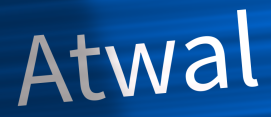
Atwal